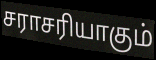
சராசரியாகும்